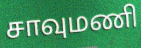
சாவுமணி